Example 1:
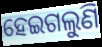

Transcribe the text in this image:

ହେଇଗଲୁଣି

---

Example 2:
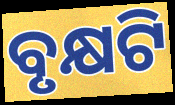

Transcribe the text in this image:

ବୃକ୍ଷଟି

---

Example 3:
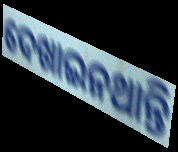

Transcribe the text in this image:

ଦେଖାଇନଥାନ୍ତି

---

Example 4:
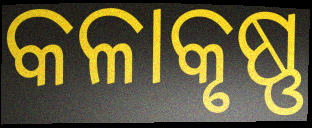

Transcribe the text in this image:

କଳାକୃଷ୍ଣ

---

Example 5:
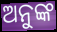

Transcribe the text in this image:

ଅନୁଙ୍କ